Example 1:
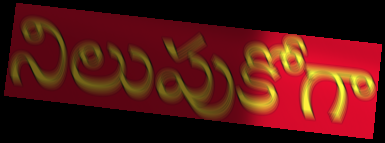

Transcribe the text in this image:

నిలుపుకోగా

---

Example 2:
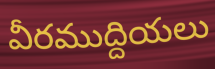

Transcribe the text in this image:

వీరముద్దియలు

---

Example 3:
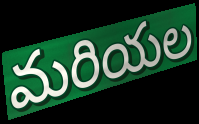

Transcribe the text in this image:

మరియల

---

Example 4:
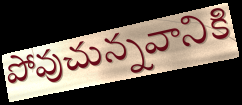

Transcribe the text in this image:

పోవుచున్నవానికి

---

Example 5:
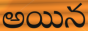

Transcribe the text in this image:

అయిన